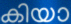
കിയാ